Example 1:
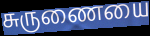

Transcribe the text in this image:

சுருணையை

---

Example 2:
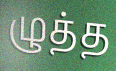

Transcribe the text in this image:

ழுத்த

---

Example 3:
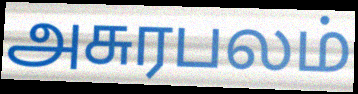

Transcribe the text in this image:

அசுரபலம்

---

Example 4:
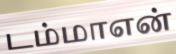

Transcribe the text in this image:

டம்மாஎன்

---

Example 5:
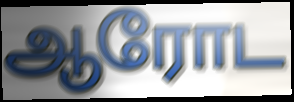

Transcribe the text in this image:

ஆரோட